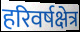
हरिवर्षक्षेत्र